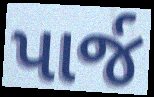
પાર્જ